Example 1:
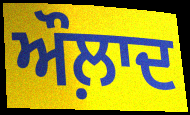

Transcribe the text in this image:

ਔਲ਼ਾਦ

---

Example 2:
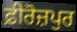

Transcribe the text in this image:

ਫ਼ੀਰੋਜ਼ਪੁਰ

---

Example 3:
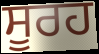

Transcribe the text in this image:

ਸੂਰਹ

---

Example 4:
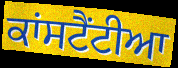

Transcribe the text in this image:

ਕਾਂਸਟੈਂਟੀਆ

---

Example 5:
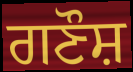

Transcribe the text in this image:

ਗਣੌਸ਼